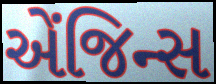
એંજિન્સ